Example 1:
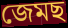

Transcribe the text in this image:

জেমছ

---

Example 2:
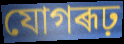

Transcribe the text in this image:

যোগৰূঢ়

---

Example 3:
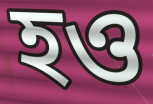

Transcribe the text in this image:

হও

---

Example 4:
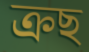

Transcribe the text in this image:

ক্ৰছ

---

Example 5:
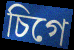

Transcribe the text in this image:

চিগে